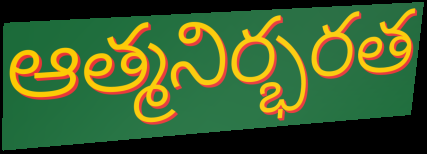
ఆత్మనిర్భరత